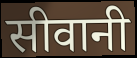
सीवानी